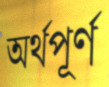
অৰ্থপূৰ্ণ